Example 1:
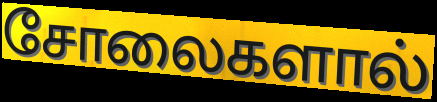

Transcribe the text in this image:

சோலைகளால்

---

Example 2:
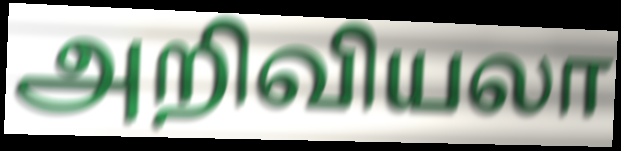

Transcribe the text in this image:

அறிவியலா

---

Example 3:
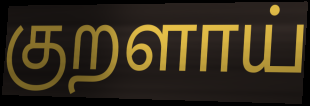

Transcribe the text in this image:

குறளாய்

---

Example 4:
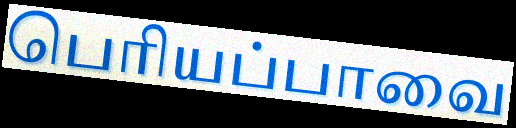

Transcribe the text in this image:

பெரியப்பாவை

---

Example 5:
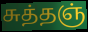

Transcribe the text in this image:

சுத்தஞ்